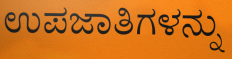
ಉಪಜಾತಿಗಳನ್ನು